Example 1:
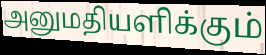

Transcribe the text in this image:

அனுமதியளிக்கும்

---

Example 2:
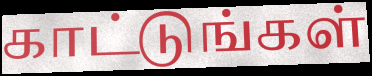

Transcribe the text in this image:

காட்டுங்கள்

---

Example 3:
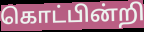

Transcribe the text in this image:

கொட்பின்றி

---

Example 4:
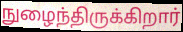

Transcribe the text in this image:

நுழைந்திருக்கிறார்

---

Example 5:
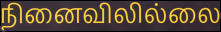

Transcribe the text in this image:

நினைவிலில்லை